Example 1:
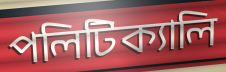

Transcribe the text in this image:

পলিটিক্যালি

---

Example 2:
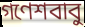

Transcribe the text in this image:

গণেশবাবু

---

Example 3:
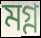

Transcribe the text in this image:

মগ্ন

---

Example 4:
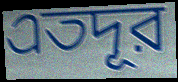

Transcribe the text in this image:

এতদূর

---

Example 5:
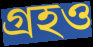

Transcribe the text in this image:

গ্রহও